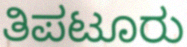
ತಿಪಟೂರು